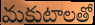
మకుటాలతో